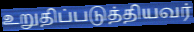
உறுதிப்படுத்தியவர்